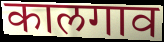
कालगाव